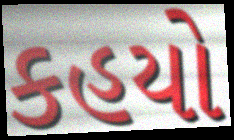
કહયો